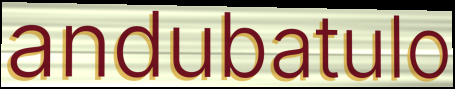
andubatulo